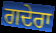
ਗਦੇਰਾ